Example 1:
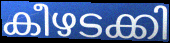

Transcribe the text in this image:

കീഴടക്കി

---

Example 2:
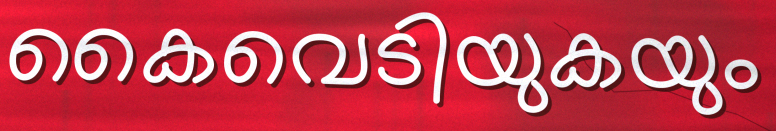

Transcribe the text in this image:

കൈവെടിയുകയും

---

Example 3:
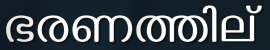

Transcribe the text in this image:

ഭരണത്തില്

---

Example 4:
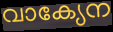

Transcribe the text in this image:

വാക്യേന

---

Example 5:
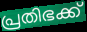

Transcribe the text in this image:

പ്രതിഭക്ക്